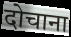
दोचाना